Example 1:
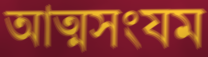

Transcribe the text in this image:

আত্মসংযম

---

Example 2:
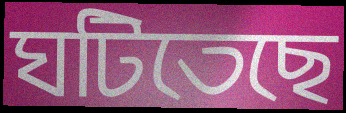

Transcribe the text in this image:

ঘটিতেছে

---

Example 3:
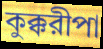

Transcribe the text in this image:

কুক্করীপা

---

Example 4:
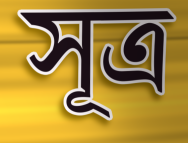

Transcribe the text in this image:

সূত্র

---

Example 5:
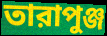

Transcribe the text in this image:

তারাপুঞ্জ